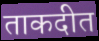
ताकदीत